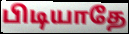
பிடியாதே